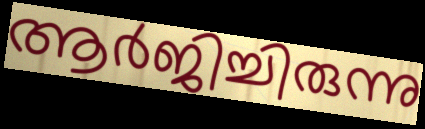
ആർജിച്ചിരുന്നു